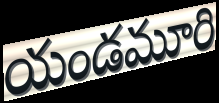
యండమూరి